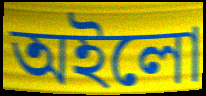
অইলো